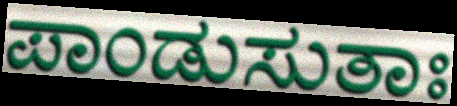
ಪಾಂಡುಸುತಾಃ